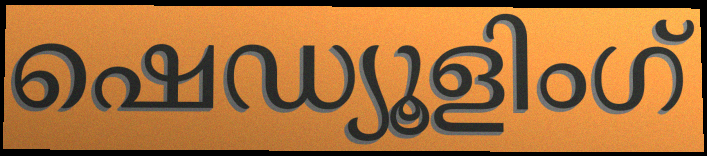
ഷെഡ്യൂളിംഗ്